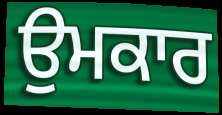
ਉਮਕਾਰ